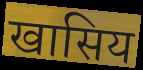
खासिय